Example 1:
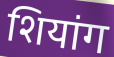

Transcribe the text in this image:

शियांग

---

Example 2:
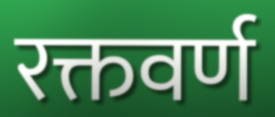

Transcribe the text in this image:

रक्तवर्ण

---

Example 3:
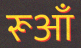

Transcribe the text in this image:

रूआँ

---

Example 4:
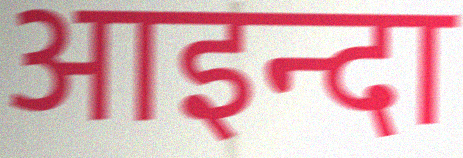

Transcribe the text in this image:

आइन्दा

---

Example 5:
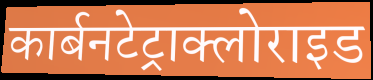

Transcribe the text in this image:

कार्बनटेट्राक्लोराइड